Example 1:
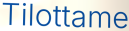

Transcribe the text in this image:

Tilottame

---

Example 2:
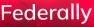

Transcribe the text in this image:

Federally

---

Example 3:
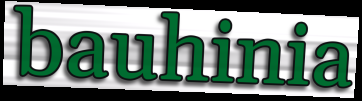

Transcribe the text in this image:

bauhinia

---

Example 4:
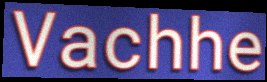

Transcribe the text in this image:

Vachhe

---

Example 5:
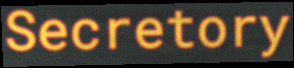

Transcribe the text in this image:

Secretory